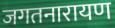
जगतनारायण